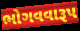
ભોગવવારૂપ